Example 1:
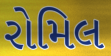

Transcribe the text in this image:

રોમિલ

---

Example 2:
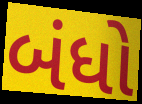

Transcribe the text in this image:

બંધો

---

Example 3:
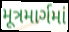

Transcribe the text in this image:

મૂત્રમાર્ગમાં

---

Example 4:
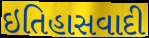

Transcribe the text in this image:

ઇતિહાસવાદી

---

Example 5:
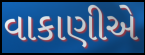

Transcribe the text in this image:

વાકાણીએ